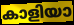
കാളിയാ